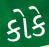
કોકે